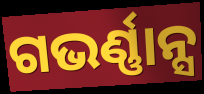
ଗଭର୍ଣ୍ଣାନ୍ସ